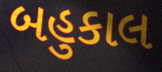
બહુકાલ